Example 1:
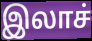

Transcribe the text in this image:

இலாச்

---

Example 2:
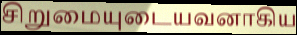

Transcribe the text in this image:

சிறுமையுடையவனாகிய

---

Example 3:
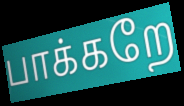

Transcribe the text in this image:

பாக்கறே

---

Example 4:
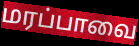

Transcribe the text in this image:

மரப்பாவை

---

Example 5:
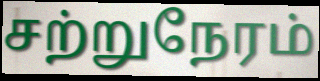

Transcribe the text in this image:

சற்றுநேரம்